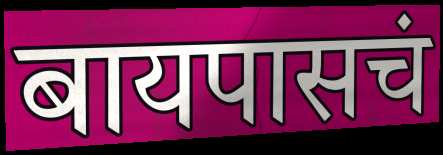
बायपासचं